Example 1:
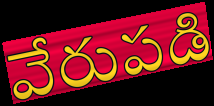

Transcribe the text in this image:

వేరుపడి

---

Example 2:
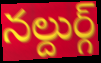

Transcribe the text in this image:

నల్దుర్గ్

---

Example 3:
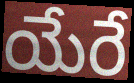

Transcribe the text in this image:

యేరే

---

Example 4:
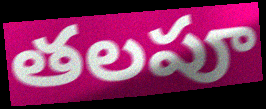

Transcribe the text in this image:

తలపూ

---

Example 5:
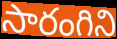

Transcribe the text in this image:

సారంగిని